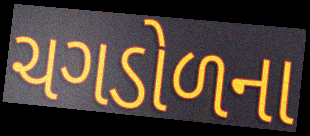
ચગડોળના